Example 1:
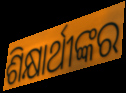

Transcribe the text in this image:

ଶିକ୍ଷାର୍ଥୀଙ୍କର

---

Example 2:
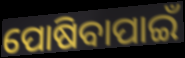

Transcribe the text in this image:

ପୋଷିବାପାଇଁ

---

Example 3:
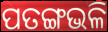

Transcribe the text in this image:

ପତଙ୍ଗଭଳି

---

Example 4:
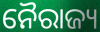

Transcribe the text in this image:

ନୈରାଜ୍ୟ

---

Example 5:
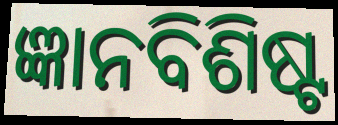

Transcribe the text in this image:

ଜ୍ଞାନବିଶିଷ୍ଟ